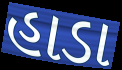
હાડા